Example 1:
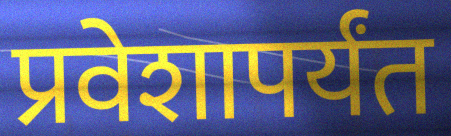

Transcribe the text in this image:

प्रवेशापर्यंत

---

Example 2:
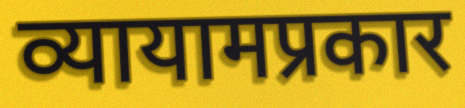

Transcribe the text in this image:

व्यायामप्रकार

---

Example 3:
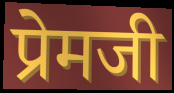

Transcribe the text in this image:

प्रेमजी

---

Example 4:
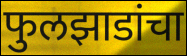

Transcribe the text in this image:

फुलझाडांचा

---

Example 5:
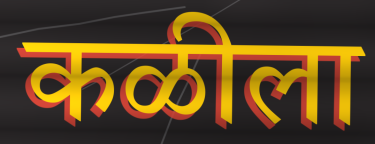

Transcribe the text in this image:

कळीला